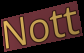
Nott